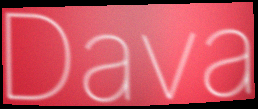
Dava